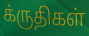
க்ருதிகள்